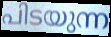
പിടയുന്ന